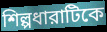
শিল্পধারাটিকে